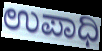
ಉಪಾಧಿ